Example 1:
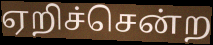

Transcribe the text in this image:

ஏறிச்சென்ற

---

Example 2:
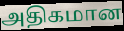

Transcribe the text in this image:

அதிகமான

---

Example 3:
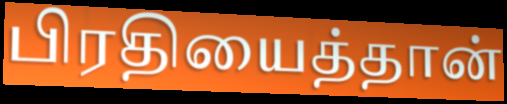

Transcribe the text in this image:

பிரதியைத்தான்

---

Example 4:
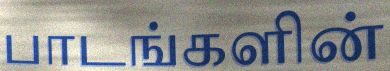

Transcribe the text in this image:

பாடங்களின்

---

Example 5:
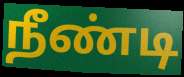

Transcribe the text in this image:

நீண்டி